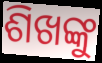
ଶିଖଙ୍କୁ